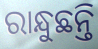
ରାନ୍ଧୁଛନ୍ତି